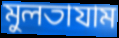
মুলতাযাম